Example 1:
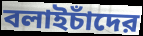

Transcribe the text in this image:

বলাইচাঁদের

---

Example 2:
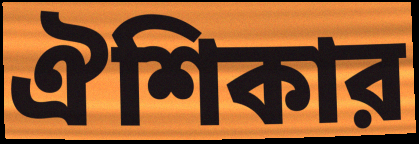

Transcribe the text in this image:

ঐশিকার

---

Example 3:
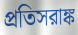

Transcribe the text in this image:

প্রতিসরাঙ্ক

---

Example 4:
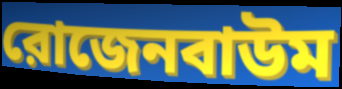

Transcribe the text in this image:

রোজেনবাউম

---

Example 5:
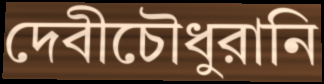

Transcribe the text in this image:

দেবীচৌধুরানি